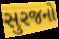
સુરજનો